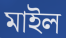
মাইল